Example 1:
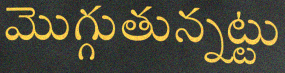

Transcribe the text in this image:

మొగ్గుతున్నట్టు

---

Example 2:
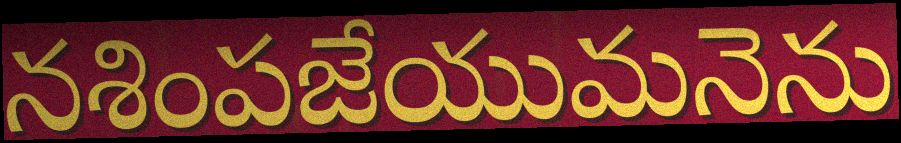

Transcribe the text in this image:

నశింపజేయుమనెను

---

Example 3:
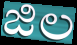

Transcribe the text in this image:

జిల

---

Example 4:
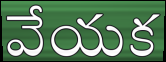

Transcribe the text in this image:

వేయక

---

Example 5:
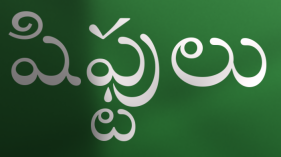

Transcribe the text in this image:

షిఫ్టులు